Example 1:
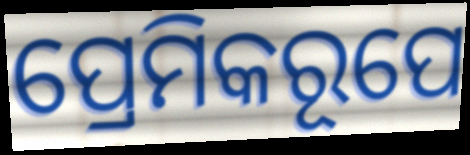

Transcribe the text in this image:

ପ୍ରେମିକରୂପେ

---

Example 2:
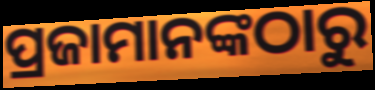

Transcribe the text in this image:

ପ୍ରଜାମାନଙ୍କଠାରୁ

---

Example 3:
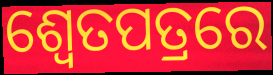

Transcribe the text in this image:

ଶ୍ଵେତପତ୍ରରେ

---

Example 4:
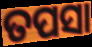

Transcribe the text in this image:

ତପସା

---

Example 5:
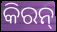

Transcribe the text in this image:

କିରନ୍